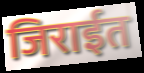
जिराईत